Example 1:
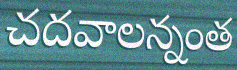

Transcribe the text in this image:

చదవాలన్నంత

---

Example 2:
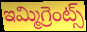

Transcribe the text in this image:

ఇమ్మిగ్రెంట్స్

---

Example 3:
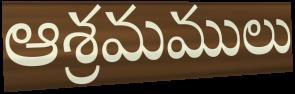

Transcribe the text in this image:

ఆశ్రమములు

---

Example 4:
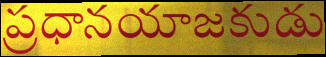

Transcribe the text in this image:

ప్రధానయాజకుడు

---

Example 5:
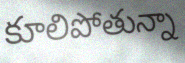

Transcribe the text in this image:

కూలిపోతున్నా